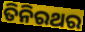
ତିନିରଥର